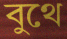
বুথে